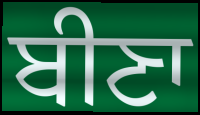
ਬੀਣਾ